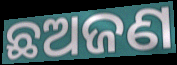
ଛଅଜଣ